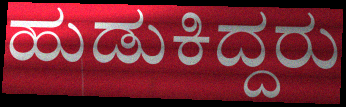
ಹುಡುಕಿದ್ದರು